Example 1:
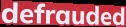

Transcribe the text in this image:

defrauded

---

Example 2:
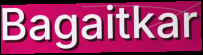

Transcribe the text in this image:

Bagaitkar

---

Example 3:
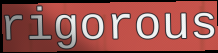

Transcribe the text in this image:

rigorous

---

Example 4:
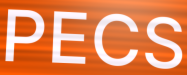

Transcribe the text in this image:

PECS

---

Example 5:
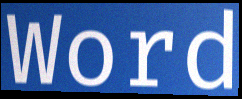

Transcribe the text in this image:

Word